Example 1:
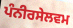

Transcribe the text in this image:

ਪੰਨੀਰਸੇਲਵਮ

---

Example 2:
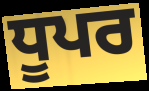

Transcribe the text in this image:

ਧੂਪਰ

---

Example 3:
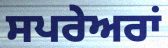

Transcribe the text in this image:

ਸਪਰੇਅਰਾਂ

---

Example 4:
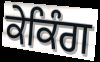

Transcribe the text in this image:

ਕੇਕਿੰਗ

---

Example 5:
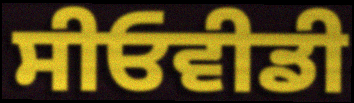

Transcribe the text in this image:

ਸੀਓਵੀਡੀ